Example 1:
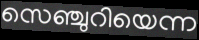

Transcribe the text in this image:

സെഞ്ചുറിയെന്ന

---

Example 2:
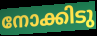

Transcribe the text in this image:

നോക്കിടു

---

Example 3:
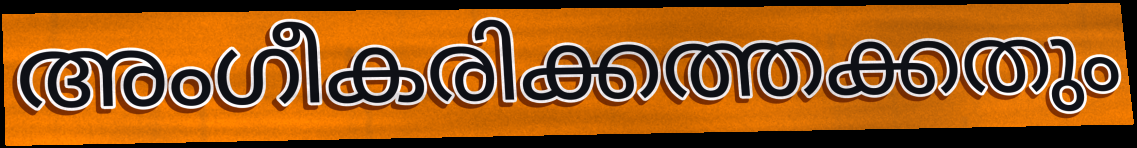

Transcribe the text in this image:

അംഗീകരിക്കത്തക്കതും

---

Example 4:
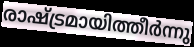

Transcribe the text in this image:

രാഷ്ട്രമായിത്തീർന്നു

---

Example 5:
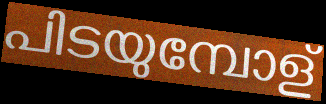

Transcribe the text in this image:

പിടയുമ്പോള്